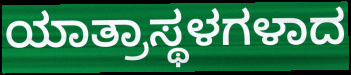
ಯಾತ್ರಾಸ್ಥಳಗಳಾದ